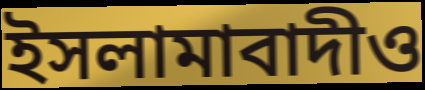
ইসলামাবাদীও